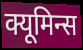
क्यूमिन्स